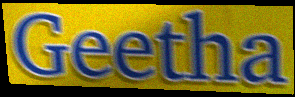
Geetha